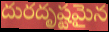
దురదృష్టమైన